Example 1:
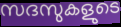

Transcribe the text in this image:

സദസുകളുടെ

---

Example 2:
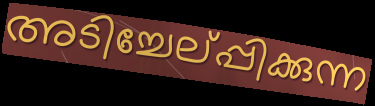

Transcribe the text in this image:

അടിച്ചേല്പ്പിക്കുന്ന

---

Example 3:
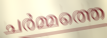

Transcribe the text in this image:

ചർമ്മത്തെ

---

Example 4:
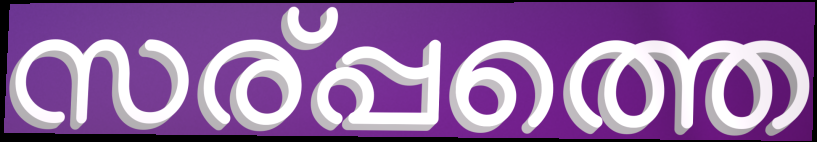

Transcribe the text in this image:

സര്പ്പത്തെ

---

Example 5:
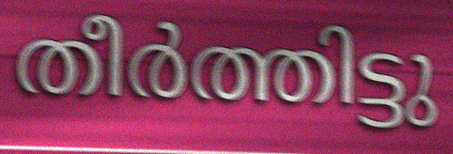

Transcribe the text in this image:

തീർത്തിട്ടു